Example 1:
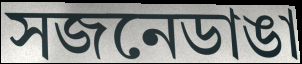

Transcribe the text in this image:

সজনেডাঙা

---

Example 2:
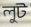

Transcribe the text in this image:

লুট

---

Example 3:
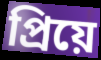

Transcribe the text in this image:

প্রিয়ে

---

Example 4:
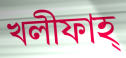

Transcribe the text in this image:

খলীফাহ্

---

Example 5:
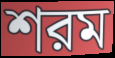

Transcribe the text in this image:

শরম